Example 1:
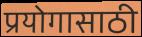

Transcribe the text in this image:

प्रयोगासाठी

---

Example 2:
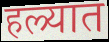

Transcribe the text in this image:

हल्यात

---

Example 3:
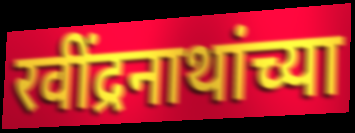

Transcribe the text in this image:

रवींद्रनाथांच्या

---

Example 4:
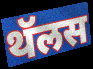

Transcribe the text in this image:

थॅलस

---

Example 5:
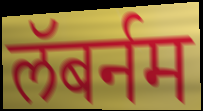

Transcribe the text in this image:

लॅबर्नम